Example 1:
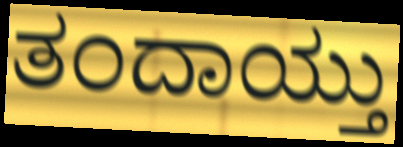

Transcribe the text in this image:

ತಂದಾಯ್ತು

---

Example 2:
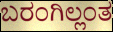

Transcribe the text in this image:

ಬರಂಗಿಲ್ಲಂತ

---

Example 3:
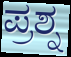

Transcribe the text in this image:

ಪ್ರಶ್ನ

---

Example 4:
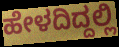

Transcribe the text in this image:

ಹೇಳದಿದ್ದಲ್ಲಿ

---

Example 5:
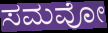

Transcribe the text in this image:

ಸಮವೋ